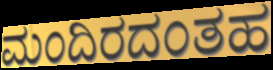
ಮಂದಿರದಂತಹ